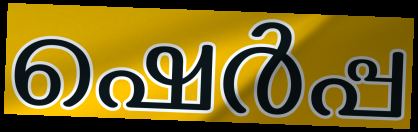
ഷെർപ്പ